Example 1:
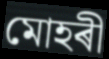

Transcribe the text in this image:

মোহৰী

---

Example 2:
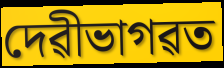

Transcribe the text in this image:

দেৱীভাগৱত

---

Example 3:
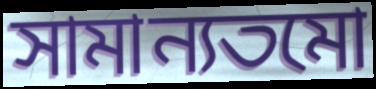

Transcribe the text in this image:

সামান্যতমো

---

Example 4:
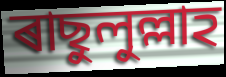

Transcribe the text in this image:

ৰাছুলুল্লাহ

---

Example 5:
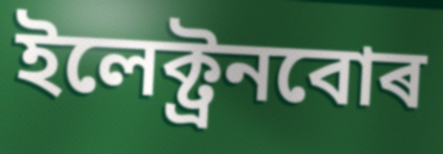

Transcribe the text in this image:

ইলেক্ট্ৰনবোৰ